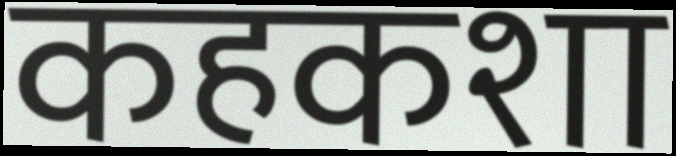
कहकशा